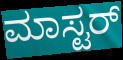
ಮಾಸ್ಟರ್